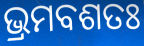
ଭ୍ରମବଶତଃ